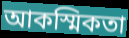
আকস্মিকতা